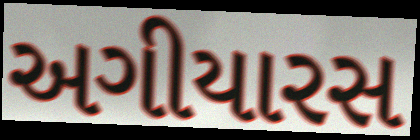
અગીયારસ